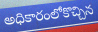
అధికారంలోకొచ్చిన